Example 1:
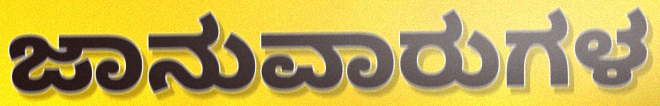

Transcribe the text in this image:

ಜಾನುವಾರುಗಳ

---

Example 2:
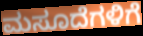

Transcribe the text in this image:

ಮಸೂದೆಗಳಿಗೆ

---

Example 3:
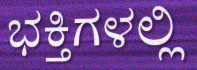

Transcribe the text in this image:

ಭಕ್ತಿಗಳಲ್ಲಿ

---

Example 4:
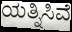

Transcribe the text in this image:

ಯತ್ನಿಸಿವೆ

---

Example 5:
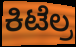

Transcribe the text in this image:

ಕಿಟೆಲ್ರ